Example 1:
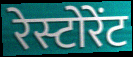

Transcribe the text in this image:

रेस्‍टोरेंट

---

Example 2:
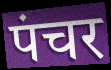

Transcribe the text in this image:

पंचर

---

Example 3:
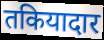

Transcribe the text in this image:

तकियादार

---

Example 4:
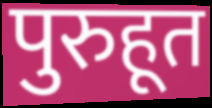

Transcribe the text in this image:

पुरुहूत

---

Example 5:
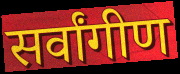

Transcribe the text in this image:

सर्वांगीण